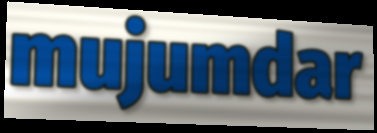
mujumdar